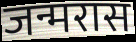
जन्मरास